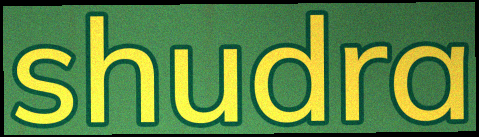
shudra